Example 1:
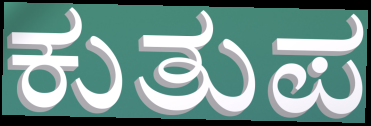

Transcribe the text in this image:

ಕುತುಪ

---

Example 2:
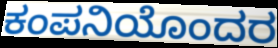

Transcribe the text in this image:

ಕಂಪನಿಯೊಂದರ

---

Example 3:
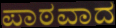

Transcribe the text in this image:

ಪಾಠವಾದ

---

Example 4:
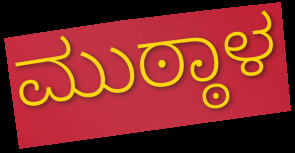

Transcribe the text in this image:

ಮುಠ್ಠಾಳ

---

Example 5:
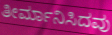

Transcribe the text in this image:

ತೀರ್ಮಾನಿಸಿದವು